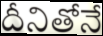
దీనితోనే